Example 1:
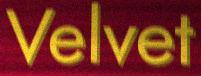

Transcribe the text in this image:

Velvet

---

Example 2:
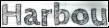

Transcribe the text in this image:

Harbou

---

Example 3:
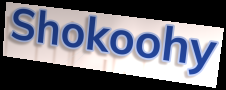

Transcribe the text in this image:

Shokoohy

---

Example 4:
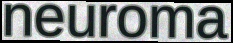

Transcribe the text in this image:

neuroma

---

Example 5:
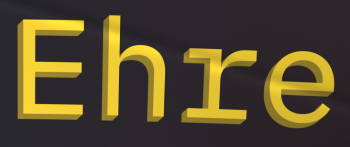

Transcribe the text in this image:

Ehre